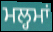
ਮਲ੍ਹਮਾਂ